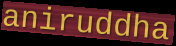
aniruddha